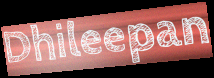
Dhileepan